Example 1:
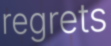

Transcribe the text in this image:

regrets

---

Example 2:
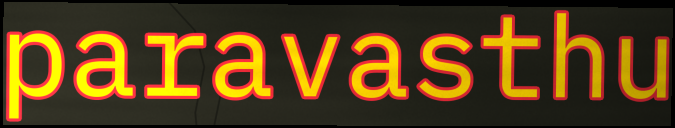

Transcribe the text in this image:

paravasthu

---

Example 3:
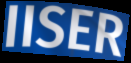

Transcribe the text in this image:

IISER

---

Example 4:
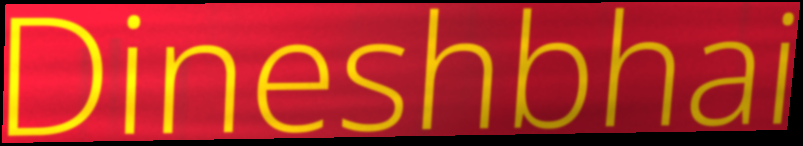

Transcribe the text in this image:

Dineshbhai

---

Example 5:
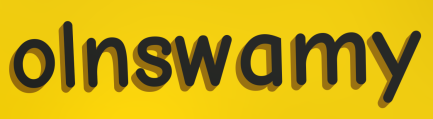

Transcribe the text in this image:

olnswamy